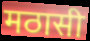
मठासी